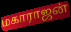
மகாராஜன்